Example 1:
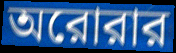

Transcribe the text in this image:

অরোরার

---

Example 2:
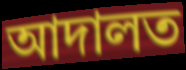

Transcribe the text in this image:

আদালত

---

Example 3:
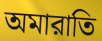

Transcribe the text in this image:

অমারাতি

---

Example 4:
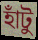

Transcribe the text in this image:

হাঁটু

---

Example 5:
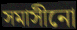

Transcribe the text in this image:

সমাসীনো